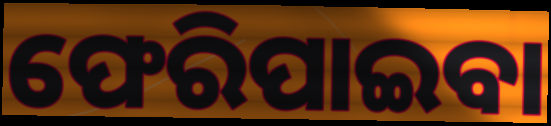
ଫେରିପାଇବା